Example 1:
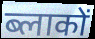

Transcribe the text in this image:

ब्लाकों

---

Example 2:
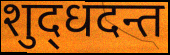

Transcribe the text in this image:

शुद्धदन्त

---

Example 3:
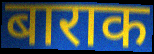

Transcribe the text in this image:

बाराक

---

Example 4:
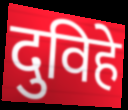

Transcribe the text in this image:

दुविहे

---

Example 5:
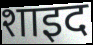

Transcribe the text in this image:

शाइद